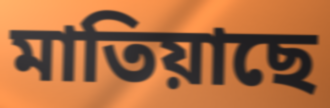
মাতিয়াছে